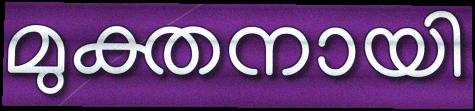
മുക്തനായി